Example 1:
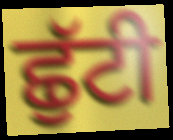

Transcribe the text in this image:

ਛੁੱਟੀ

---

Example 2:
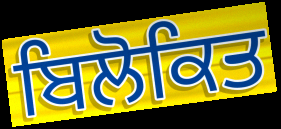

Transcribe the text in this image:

ਬਿਲੋਕਿਤ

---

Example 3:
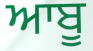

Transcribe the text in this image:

ਆਬੂ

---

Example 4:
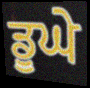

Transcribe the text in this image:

ਡੂਘੇ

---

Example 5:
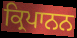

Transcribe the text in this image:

ਕ੍ਰਿਪਾਨਨ